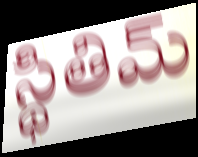
స్థితిమ్